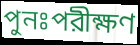
পুনঃপরীক্ষণ